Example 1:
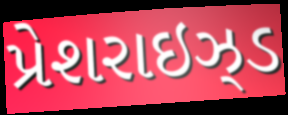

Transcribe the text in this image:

પ્રેશરાઇઝ્ડ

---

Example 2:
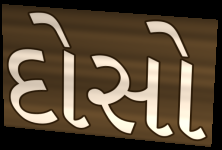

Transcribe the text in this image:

દોસો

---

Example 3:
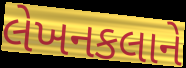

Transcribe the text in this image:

લેખનકલાને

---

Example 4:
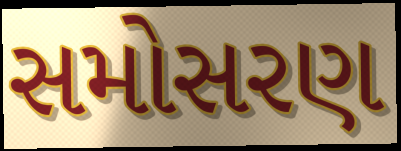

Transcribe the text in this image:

સમોસરણ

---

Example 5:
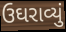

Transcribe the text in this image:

ઉઘરાવ્યું